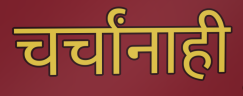
चर्चांनाही